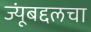
ज्यूंबद्दलचा